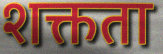
शक्तता